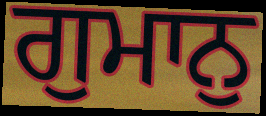
ਗੁਮਾਨੁ